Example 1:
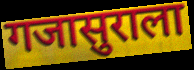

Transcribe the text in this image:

गजासुराला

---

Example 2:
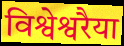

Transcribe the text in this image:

विश्वेश्वरैया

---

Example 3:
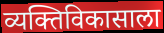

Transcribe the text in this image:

व्यक्तिविकासाला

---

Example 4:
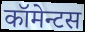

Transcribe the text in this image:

कॉमेन्टस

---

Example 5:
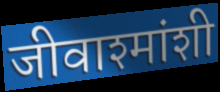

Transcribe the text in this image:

जीवाश्मांशी